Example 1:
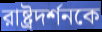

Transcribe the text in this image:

রাষ্ট্রদর্শনকে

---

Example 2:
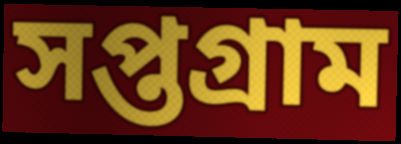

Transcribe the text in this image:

সপ্তগ্রাম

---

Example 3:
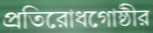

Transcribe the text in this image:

প্রতিরোধগোষ্ঠীর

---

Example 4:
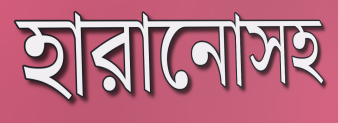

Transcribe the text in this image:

হারানোসহ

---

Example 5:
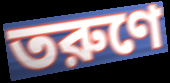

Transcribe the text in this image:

তরুণে